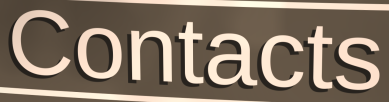
Contacts